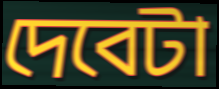
দেবেটা